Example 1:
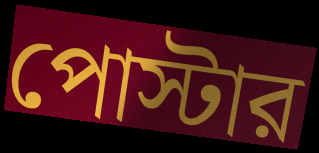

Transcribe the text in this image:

পোস্টার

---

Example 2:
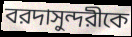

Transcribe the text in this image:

বরদাসুন্দরীকে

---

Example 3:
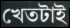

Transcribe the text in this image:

খেতটাই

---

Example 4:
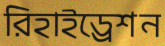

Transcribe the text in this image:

রিহাইড্রেশন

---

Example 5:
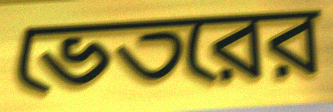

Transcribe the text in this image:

ভেতরের